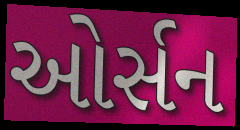
ઓર્સન